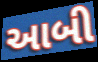
આબી